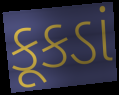
કૂકડાં